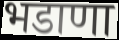
भडाणा